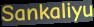
Sankaliyu